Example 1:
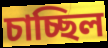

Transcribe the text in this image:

চাচ্ছিল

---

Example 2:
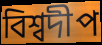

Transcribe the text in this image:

বিশ্বদীপ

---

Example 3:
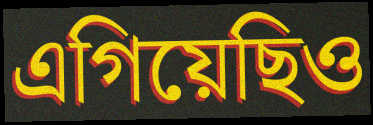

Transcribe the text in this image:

এগিয়েছিও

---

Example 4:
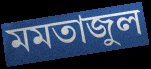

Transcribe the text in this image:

মমতাজুল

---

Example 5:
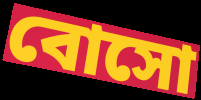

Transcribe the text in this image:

বোসো